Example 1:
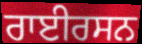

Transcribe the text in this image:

ਰਾਈਰਸਨ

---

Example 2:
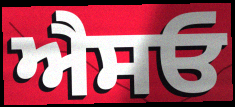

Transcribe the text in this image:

ਐਸਓ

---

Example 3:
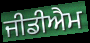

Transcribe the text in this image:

ਜੀਡੀਐਮ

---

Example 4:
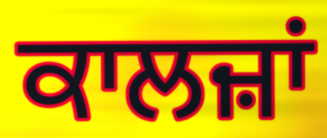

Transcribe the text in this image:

ਕਾਲਜ਼ਾਂ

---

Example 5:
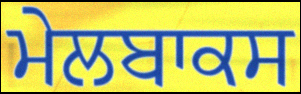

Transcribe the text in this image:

ਮੇਲਬਾਕਸ